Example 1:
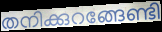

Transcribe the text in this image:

തനിക്കുറങ്ങേണ്ടി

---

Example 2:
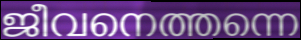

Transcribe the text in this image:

ജീവനെത്തന്നെ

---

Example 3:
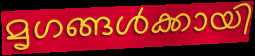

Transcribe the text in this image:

മൃഗങ്ങൾക്കായി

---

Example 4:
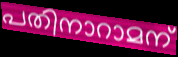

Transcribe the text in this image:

പതിനാറാമന്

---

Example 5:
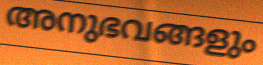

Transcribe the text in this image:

അനുഭവങ്ങളും